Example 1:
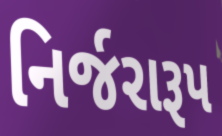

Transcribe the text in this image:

નિર્જરારૂપ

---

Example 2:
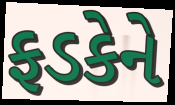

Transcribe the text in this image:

ફડકેને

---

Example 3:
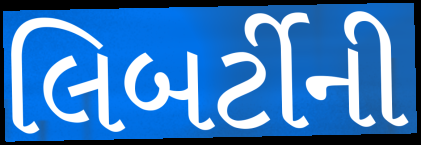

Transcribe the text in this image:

લિબર્ટીની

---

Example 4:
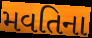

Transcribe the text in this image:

મવતિના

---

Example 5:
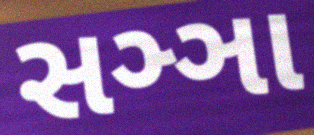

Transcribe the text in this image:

સઞ્ઞા